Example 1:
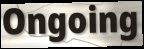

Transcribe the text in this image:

Ongoing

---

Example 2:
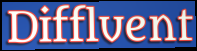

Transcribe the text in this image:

Diffluent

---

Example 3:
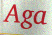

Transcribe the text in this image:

Aga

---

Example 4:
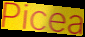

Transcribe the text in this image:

Picea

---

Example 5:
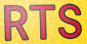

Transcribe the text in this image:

RTS